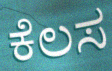
ಕೆಲಸ